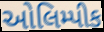
ઓલિમ્પીક